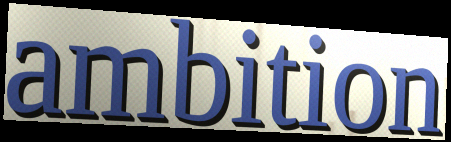
ambition